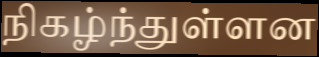
நிகழ்ந்துள்ளன